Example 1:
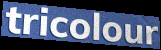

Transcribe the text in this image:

tricolour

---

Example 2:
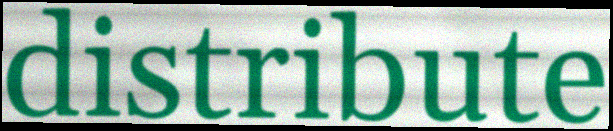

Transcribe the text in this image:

distribute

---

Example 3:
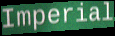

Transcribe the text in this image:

Imperial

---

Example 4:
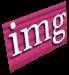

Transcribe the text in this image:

img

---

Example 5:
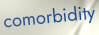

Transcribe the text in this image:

comorbidity